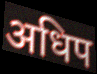
अधिप